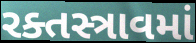
રક્તસ્ત્રાવમાં